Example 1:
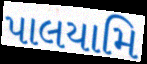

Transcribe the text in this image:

પાલયામિ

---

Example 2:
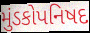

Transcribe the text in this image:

મુંડકોપનિષદ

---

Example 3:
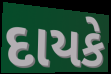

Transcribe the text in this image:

દાયકે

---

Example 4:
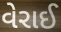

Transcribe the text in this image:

વેરાઈ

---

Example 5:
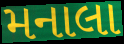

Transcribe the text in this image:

મનાલા